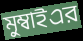
মুম্বাইএর